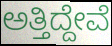
ಅತ್ತಿದ್ದೇವೆ